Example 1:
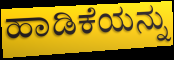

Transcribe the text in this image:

ಹಾಡಿಕೆಯನ್ನು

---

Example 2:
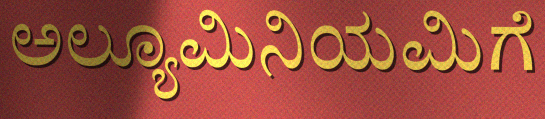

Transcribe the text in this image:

ಅಲ್ಯೂಮಿನಿಯಮಿಗೆ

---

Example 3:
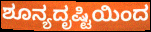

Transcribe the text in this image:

ಶೂನ್ಯದೃಷ್ಟಿಯಿಂದ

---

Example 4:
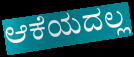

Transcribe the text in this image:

ಆಕೆಯದಲ್ಲ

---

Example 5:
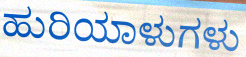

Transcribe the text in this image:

ಹುರಿಯಾಳುಗಳು